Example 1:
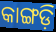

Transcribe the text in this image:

କାଙ୍ଗଡ଼ି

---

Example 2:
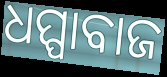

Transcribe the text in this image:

ଧପ୍ପାବାଜ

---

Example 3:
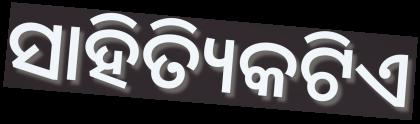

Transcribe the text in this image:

ସାହିତ୍ୟିକଟିଏ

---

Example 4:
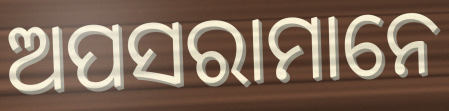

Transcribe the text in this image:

ଅପସରାମାନେ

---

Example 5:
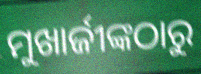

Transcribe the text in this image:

ମୁଖାର୍ଜୀଙ୍କଠାରୁ